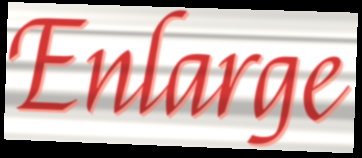
Enlarge